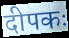
दीपकः